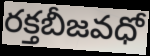
రక్తబీజవధో